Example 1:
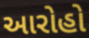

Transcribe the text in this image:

આરોહો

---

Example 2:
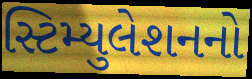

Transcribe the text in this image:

સ્ટિમ્યુલેશનનો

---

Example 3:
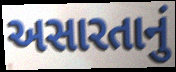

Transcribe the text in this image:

અસારતાનું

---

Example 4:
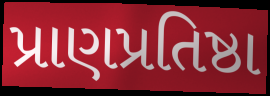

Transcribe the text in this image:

પ્રાણપ્રતિષ્ઠા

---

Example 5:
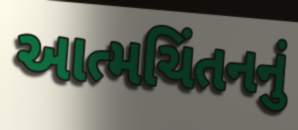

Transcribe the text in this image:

આત્મચિંતનનું